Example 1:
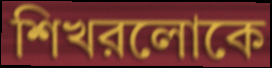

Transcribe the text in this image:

শিখরলোকে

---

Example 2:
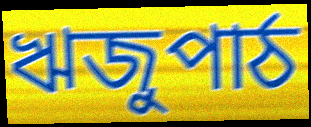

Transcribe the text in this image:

ঋজুপাঠ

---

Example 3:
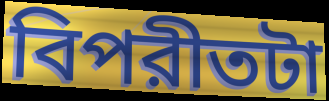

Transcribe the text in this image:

বিপরীতটা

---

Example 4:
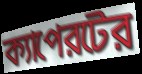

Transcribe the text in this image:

ক্যাপেরটের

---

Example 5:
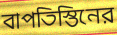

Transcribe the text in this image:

বাপতিস্তিনের